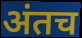
अंतच